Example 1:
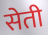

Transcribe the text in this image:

सेती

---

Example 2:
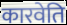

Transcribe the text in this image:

कारवेति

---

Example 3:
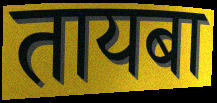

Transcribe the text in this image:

तायबा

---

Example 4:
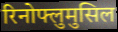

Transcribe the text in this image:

रिनोफ्लुमुसिल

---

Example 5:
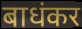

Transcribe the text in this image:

बाधंकर